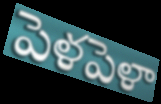
పెళపెళా